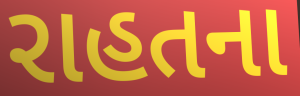
રાહતના